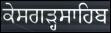
ਕੇਸਗੜ੍ਹਸਾਹਿਬ